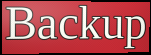
Backup